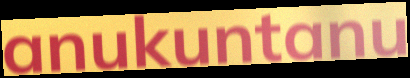
anukuntanu